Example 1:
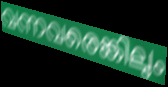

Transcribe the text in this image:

വന്നവരെങ്കിലും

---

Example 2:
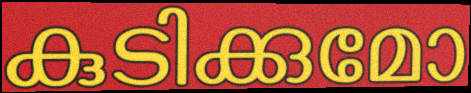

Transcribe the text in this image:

കുടിക്കുമോ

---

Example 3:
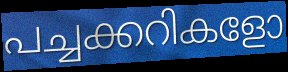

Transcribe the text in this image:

പച്ചക്കറികളോ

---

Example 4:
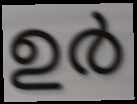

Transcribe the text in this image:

ഉർ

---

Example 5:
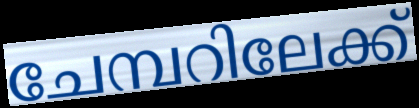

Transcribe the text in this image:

ചേമ്പറിലേക്ക്